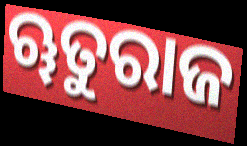
ୠତୁରାଜ